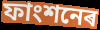
ফাংশনেৰ